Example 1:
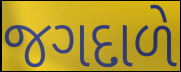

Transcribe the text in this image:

જગદાળે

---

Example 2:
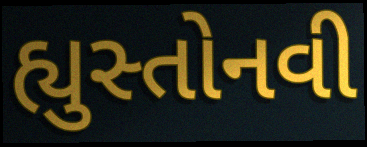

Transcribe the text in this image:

હ્યુસ્તોનવી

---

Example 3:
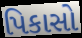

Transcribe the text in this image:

પિકાસો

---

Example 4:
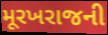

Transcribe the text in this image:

મૂરખરાજની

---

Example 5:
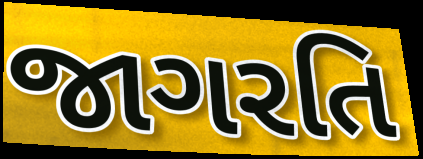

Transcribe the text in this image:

જાગરતિ